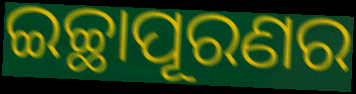
ଇଚ୍ଛାପୂରଣର